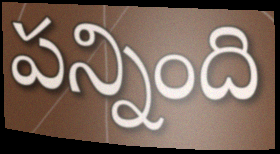
పన్నింది